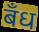
बँध